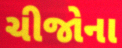
ચીજોના